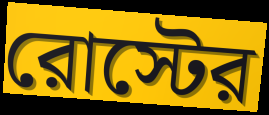
রোস্টের